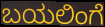
ಬಯಲಿಂಗೆ